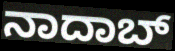
ನಾದಾಬ್